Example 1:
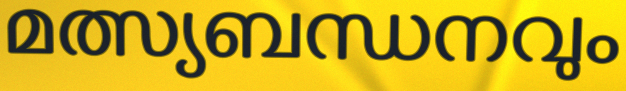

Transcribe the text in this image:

മത്സ്യബന്ധനവും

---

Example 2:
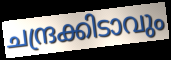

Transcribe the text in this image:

ചന്ദ്രക്കിടാവും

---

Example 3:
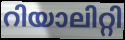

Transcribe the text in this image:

റിയാലിറ്റി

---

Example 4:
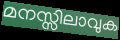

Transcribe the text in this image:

മനസ്സിലാവുക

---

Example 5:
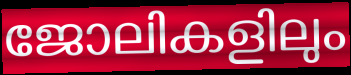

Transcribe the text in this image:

ജോലികളിലും